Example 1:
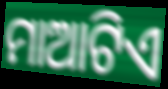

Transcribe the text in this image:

ମାଆଟିଏ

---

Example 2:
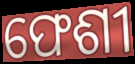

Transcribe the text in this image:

ଫେଶୀ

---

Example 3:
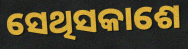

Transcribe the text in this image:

ସେଥିସକାଶେ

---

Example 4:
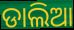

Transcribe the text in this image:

ଡାଲିଆ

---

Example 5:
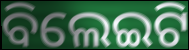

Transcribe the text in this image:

ବିଲେଇଟି